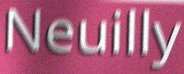
Neuilly